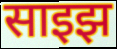
साइझ